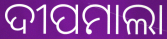
ଦୀପମାଲା